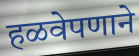
हळवेपणाने